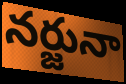
నర్జునా